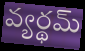
వ్యర్థమ్